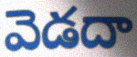
వెడదా